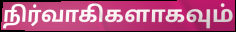
நிர்வாகிகளாகவும்